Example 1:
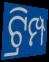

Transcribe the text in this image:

ଟ୍ରିମ୍ପ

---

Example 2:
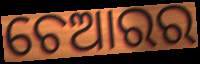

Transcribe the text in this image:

ଚେଆରର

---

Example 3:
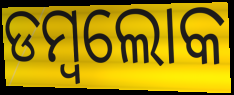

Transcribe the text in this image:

ଡମ୍ବଲୋକ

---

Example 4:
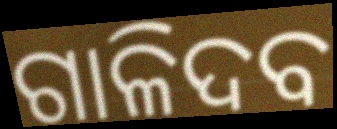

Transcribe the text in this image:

ଗାଳିଦବ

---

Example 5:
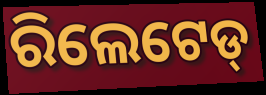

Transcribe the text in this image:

ରିଲେଟେଡ୍